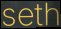
seth